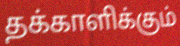
தக்காளிக்கும்